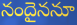
నందైననూ